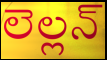
లెల్లన్